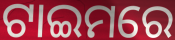
ଟାଇମରେ